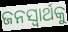
ଜନସ୍ବାର୍ଥକୁ